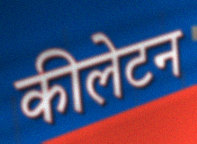
कीलेटन